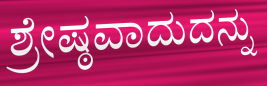
ಶ್ರೇಷ್ಠವಾದುದನ್ನು